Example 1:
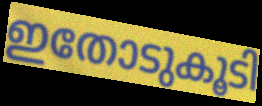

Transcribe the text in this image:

ഇതോടുകൂടി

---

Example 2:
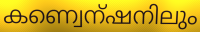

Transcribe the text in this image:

കണ്വെന്ഷനിലും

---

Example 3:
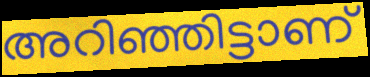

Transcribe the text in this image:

അറിഞ്ഞിട്ടാണ്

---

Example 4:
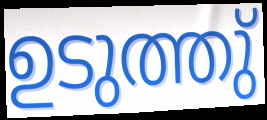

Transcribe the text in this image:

ഉടുത്തു്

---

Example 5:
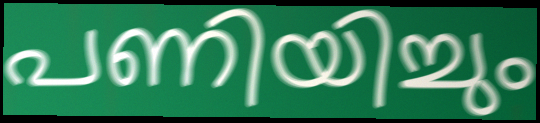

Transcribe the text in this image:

പണിയിച്ചും